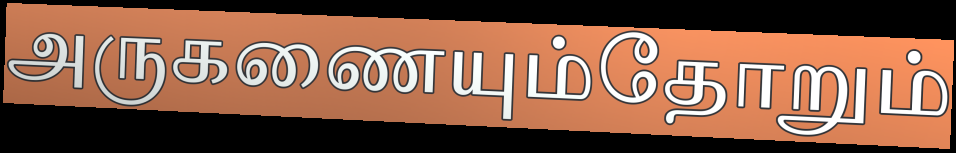
அருகணையும்தோறும்